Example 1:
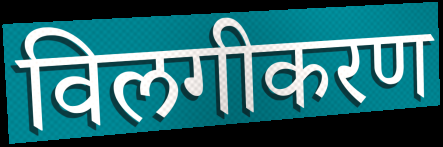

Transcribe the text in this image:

विलगीकरण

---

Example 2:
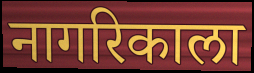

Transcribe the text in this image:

नागरिकाला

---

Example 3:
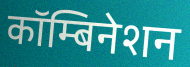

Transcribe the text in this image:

कॉम्बिनेशन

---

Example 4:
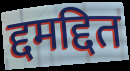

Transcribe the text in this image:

द्दमद्दित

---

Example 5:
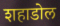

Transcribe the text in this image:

शहाडोल